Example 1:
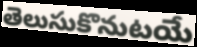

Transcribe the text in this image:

తెలుసుకొనుటయే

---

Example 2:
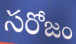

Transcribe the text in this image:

సరోజం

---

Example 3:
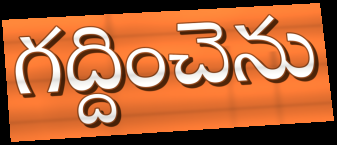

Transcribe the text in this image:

గద్దించెను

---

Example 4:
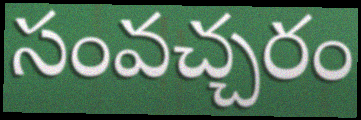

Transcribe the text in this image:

సంవచ్చరం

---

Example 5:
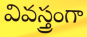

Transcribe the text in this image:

వివస్త్రంగా